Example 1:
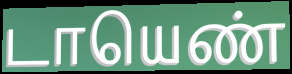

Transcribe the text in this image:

டாயெண்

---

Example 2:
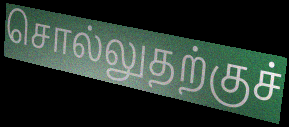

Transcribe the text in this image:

சொல்லுதற்குச்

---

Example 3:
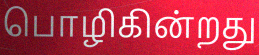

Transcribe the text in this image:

பொழிகின்றது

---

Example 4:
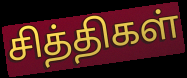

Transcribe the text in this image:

சித்திகள்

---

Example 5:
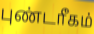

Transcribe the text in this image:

புண்டரீகம்